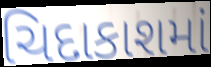
ચિદાકાશમાં